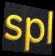
spl